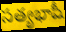
సత్యభాషీ